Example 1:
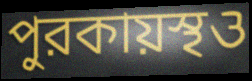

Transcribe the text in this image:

পুরকায়স্থও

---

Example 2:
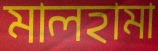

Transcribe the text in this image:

মালহামা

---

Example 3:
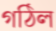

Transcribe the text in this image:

গঠিল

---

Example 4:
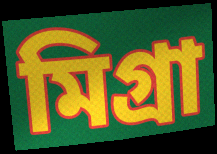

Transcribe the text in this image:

মিগ্রা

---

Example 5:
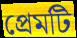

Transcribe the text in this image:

প্রেমটি